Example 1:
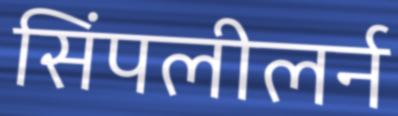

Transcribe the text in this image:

सिंपलीलर्न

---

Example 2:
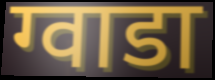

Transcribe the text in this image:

ग्वाडा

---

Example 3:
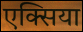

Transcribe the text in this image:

एक्सिया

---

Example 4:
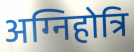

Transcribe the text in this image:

अग्निहोत्रि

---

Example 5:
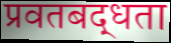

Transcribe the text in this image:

प्रवतबद्धता